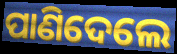
ପାଣିଦେଲେ